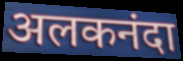
अलकनंदा